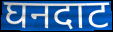
घनदाट